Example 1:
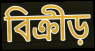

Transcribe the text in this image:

বিক্রীড়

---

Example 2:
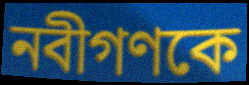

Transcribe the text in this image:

নবীগণকে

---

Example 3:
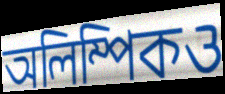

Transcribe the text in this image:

অলিম্পিকও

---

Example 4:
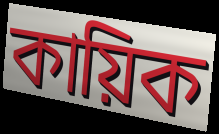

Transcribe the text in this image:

কায়িক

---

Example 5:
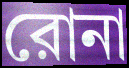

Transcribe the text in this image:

রোনা